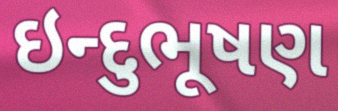
ઇન્દુભૂષણ